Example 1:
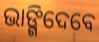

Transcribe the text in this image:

ଭାଙ୍ଗିଦେବେ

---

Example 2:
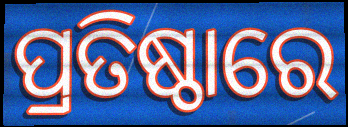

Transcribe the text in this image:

ପ୍ରତିଷ୍ଠାରେ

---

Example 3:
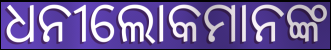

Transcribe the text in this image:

ଧନୀଲୋକମାନଙ୍କ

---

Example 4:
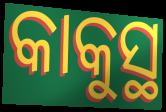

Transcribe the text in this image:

କାକୁସ୍ଥ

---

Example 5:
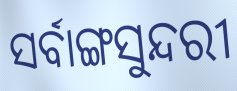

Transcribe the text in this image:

ସର୍ବାଙ୍ଗସୁନ୍ଦରୀ